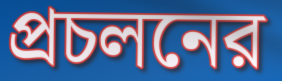
প্রচলনের